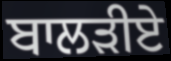
ਬਾਲੜੀਏ